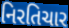
નિરતિચાર